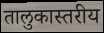
तालुकास्तरीय